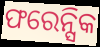
ଫରେନ୍ସିକ